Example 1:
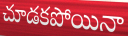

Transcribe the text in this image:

చూడకపోయినా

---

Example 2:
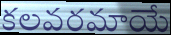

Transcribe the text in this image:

కలవరమాయే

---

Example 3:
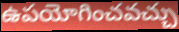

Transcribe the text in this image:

ఉపయోగించవచ్చు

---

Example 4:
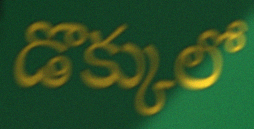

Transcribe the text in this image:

డొక్కులో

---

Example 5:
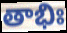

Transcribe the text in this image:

తాభిః